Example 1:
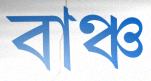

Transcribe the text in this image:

বাঞ্চ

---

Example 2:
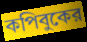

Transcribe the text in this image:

কপিবুকের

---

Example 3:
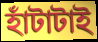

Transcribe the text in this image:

হাঁটাটাই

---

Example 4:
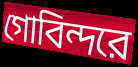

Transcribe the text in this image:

গোবিন্দরে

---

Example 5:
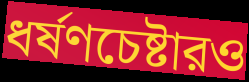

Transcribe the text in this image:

ধর্ষণচেষ্টারও